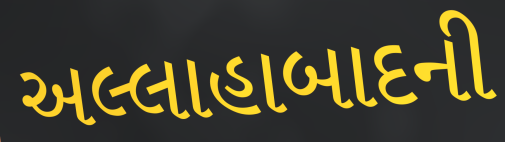
અલ્લાહાબાદની